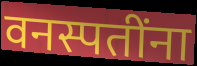
वनस्‍पतींना